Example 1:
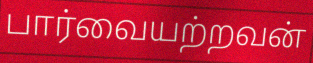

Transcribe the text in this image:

பார்வையற்றவன்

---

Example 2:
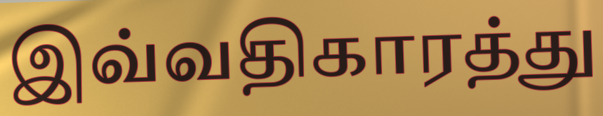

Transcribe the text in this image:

இவ்வதிகாரத்து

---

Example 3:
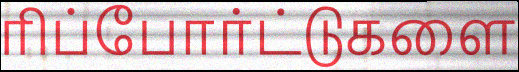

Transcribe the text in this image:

ரிப்போர்ட்டுகளை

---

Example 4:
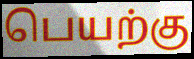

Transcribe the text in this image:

பெயற்கு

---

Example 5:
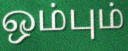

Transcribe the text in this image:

ஒம்பும்